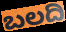
ಬಲದಿ